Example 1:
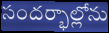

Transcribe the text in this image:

సందర్భాల్లోను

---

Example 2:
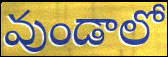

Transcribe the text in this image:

వుండాలో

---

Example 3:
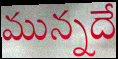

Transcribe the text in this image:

మున్నదే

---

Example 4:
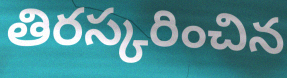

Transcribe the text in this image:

తిరస్కరించిన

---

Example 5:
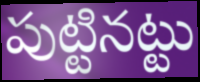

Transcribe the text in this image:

పుట్టినట్టు